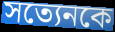
সত্যেনকে